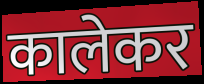
कालेकर